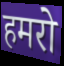
हमरो